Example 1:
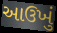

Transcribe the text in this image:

આઉખું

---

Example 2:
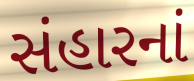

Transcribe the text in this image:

સંહારનાં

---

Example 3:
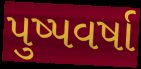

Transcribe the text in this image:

પુષ્પવર્ષા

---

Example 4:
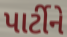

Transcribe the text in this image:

પાર્ટીને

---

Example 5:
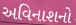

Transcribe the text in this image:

અવિનાશનો